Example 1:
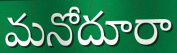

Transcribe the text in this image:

మనోదూరా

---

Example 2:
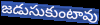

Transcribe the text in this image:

జడుసుకుంటావు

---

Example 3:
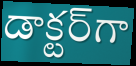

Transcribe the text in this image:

డాక్టర్‌గా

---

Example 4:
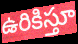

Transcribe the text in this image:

ఉరికిస్తూ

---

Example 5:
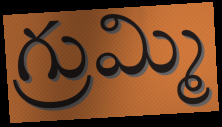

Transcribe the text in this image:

గ్రుమ్మి